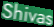
Shivas